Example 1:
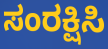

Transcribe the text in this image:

ಸಂರಕ್ಷಿಸಿ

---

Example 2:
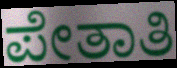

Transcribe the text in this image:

ಪೇತಾತಿ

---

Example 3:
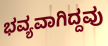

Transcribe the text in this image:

ಭವ್ಯವಾಗಿದ್ದವು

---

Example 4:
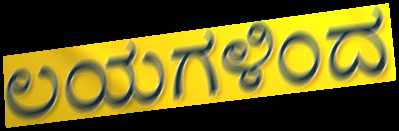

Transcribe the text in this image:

ಲಯಗಳಿಂದ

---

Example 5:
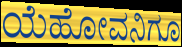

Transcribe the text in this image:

ಯೆಹೋವನಿಗೂ